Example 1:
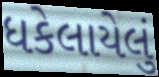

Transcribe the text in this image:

ધકેલાયેલું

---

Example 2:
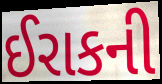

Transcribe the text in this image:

ઈરાકની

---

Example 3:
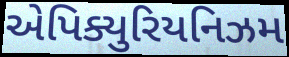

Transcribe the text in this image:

એપિક્યુરિયનિઝમ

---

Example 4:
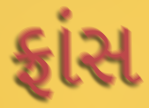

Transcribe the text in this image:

ફ્રાંસ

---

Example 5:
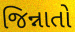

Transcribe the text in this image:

જિન્નાતો